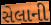
સેલાની